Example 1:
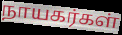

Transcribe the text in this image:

நாயகர்கள்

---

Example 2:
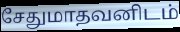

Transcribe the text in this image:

சேதுமாதவனிடம்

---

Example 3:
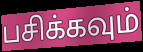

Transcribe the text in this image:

பசிக்கவும்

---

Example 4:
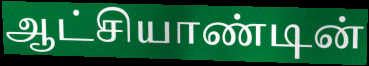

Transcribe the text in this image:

ஆட்சியாண்டின்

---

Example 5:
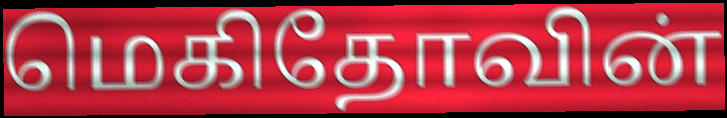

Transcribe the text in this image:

மெகிதோவின்